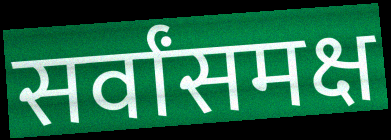
सर्वांसमक्ष